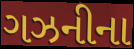
ગઝનીના